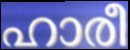
ഹാരീ